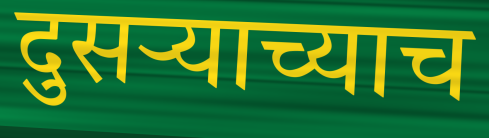
दुसऱ्याच्याच